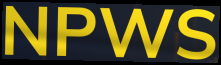
NPWS